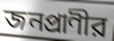
জনপ্রাণীর